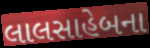
લાલસાહેબના